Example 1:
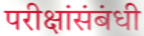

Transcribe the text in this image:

परीक्षांसंबंधी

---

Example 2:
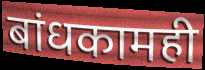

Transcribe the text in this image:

बांधकामही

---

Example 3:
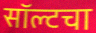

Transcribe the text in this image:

सॉल्टचा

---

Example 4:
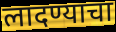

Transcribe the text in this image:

लादण्याचा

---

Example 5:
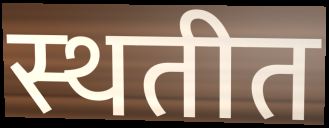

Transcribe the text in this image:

स्थतीत